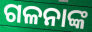
ଗଳନାଙ୍କ